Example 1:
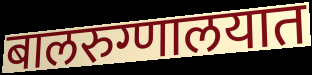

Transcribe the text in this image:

बालरुग्णालयात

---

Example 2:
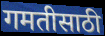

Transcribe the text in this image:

गमतीसाठी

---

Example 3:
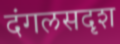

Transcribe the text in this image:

दंगलसदृश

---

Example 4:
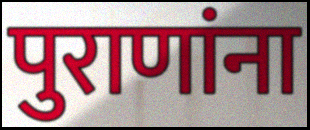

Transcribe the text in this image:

पुराणांना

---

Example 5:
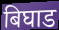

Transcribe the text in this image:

बिघाड